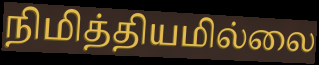
நிமித்தியமில்லை